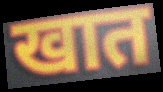
खात